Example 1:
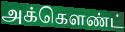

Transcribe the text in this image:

அக்கெளண்ட்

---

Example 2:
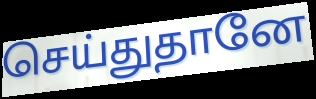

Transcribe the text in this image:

செய்துதானே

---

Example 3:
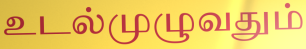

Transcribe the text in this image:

உடல்முழுவதும்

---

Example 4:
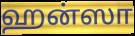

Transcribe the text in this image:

ஹன்ஸா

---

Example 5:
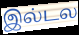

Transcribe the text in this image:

இல்டல